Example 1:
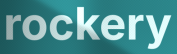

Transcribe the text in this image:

rockery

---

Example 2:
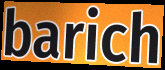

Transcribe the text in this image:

barich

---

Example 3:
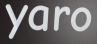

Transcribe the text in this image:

yaro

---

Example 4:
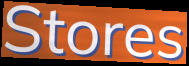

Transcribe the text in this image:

Stores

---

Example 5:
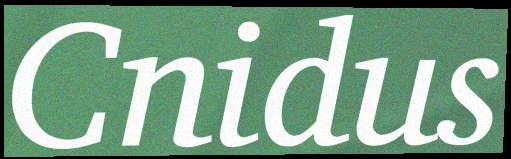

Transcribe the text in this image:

Cnidus